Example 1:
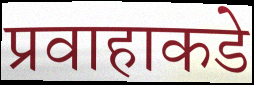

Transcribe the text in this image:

प्रवाहाकडे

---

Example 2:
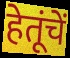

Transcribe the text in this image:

हेतूंचें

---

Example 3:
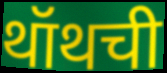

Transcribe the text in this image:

थॉथची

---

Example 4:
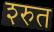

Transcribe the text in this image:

श्रुत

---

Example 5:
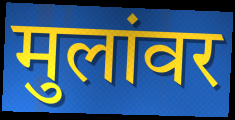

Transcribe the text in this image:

मुलांवर